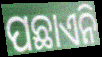
ପଛାଏନି